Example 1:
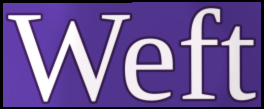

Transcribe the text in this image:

Weft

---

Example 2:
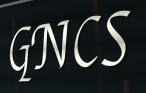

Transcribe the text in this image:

GNCS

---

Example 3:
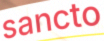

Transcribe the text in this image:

sancto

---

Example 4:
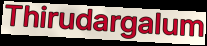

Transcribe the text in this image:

Thirudargalum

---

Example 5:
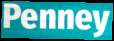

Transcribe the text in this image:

Penney